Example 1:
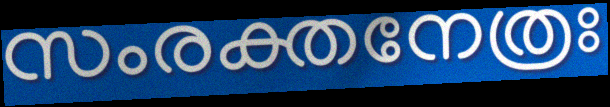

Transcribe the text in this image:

സംരക്തനേത്രഃ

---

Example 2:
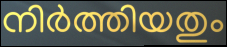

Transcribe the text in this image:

നിർത്തിയതും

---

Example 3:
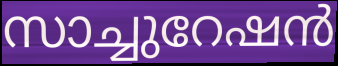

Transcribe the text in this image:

സാച്ചുറേഷൻ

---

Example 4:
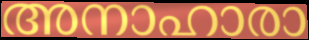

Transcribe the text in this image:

അനാഹാരാ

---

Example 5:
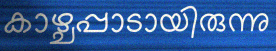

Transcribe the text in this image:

കാഴ്ചപ്പാടായിരുന്നു